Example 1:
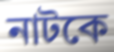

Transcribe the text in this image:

নাটকে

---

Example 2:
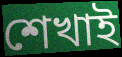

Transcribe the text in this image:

শেখাই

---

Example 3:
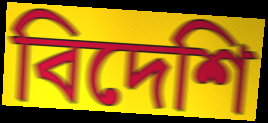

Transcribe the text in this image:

বিদেশি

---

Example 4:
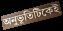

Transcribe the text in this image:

অনুভূতিটিকেই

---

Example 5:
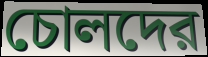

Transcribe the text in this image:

চোলদের